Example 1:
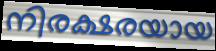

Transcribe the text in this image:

നിരക്ഷരയായ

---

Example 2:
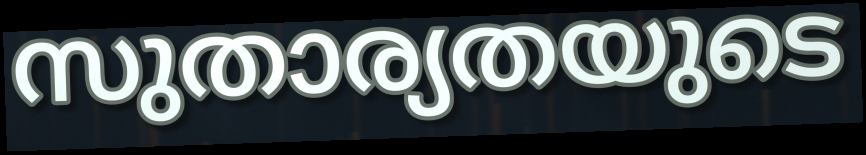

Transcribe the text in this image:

സുതാര്യതയുടെ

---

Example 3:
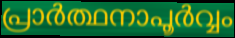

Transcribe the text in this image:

പ്രാർത്ഥനാപൂർവ്വം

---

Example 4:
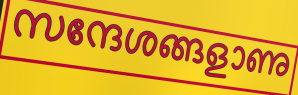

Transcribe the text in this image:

സന്ദേശങ്ങളാണു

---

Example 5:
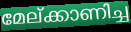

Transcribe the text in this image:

മേല്ക്കാണിച്ച